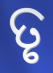
ତୃ